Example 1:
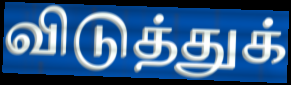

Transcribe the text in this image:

விடுத்துக்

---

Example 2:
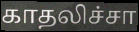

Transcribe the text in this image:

காதலிச்சா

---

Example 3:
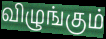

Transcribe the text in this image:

விழுங்கும்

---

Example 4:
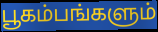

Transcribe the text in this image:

பூகம்பங்களும்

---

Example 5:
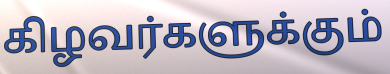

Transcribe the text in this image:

கிழவர்களுக்கும்